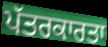
ਪੱਤਰਕਾਰਤਾ